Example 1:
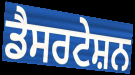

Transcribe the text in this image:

ਡੈਸਰਟੇਸ਼ਨ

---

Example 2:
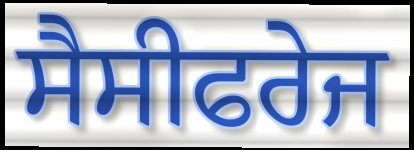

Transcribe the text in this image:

ਸੈਸੀਫਰੇਜ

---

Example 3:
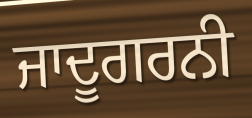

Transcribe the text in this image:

ਜਾਦੂਗਰਨੀ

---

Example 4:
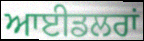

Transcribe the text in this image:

ਆਈਡਲਰਾਂ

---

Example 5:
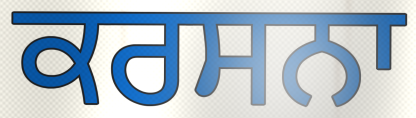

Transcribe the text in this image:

ਕਰਸਨਾ